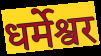
धर्मेश्वर